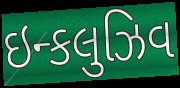
ઇન્કલુઝિવ